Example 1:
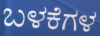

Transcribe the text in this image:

ಬಳಕೆಗಳ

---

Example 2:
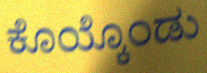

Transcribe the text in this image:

ಕೊಯ್ಕೊಂಡು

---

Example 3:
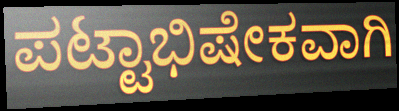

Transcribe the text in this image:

ಪಟ್ಟಾಭಿಷೇಕವಾಗಿ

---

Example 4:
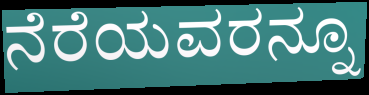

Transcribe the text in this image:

ನೆರೆಯವರನ್ನೂ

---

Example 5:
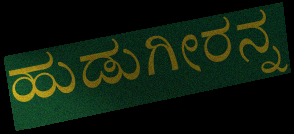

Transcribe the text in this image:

ಹುಡುಗೀರನ್ನ